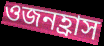
ওজনহ্রাস